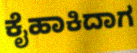
ಕೈಹಾಕಿದಾಗ